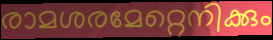
രാമശരമേറ്റെനിക്കും